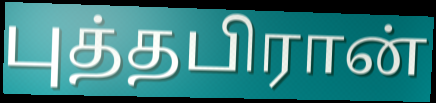
புத்தபிரான்